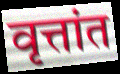
वृत्तांत